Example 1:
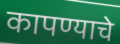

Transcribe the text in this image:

कापण्याचे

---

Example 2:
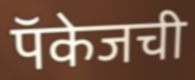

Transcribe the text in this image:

पॅकेजची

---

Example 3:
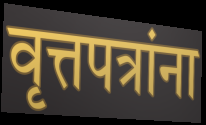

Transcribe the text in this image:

वृत्तपत्रांना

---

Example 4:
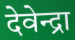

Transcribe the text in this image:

देवेन्द्रा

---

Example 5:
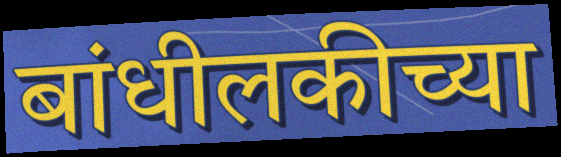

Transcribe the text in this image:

बांधीलकीच्या